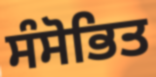
ਸੰਸੋਭਿਤ